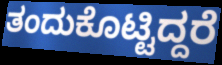
ತಂದುಕೊಟ್ಟಿದ್ದರೆ